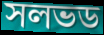
সলভড